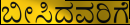
ಬೀಸಿದವರಿಗೆ